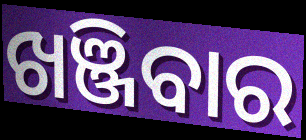
ଖଞ୍ଜିବାର